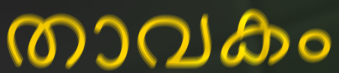
താവകം